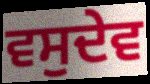
ਵਸੁਦੇਵ